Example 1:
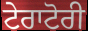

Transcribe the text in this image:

ਟੇਰਾਟੋਰੀ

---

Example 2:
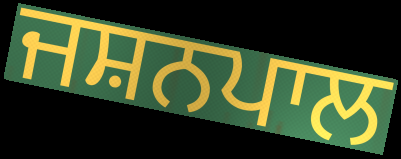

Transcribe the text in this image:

ਜਸ਼ਨਪਾਲ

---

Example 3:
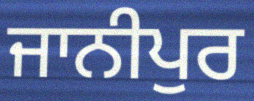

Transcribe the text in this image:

ਜਾਨੀਪੁਰ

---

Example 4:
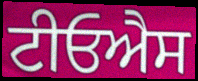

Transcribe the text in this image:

ਟੀਓਐਸ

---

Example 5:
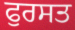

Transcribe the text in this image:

ਫੁਰਸਤ